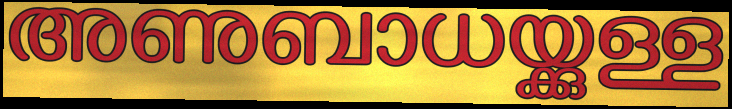
അണുബാധയ്ക്കുള്ള